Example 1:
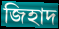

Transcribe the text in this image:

জিহাদ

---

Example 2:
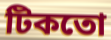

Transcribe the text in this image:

টিকতো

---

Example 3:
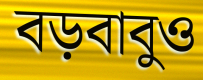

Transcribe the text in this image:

বড়বাবুও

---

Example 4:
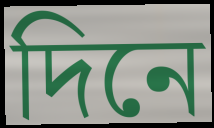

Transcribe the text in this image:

দিনে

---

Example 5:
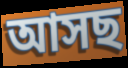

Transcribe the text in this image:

আসছ